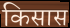
किसास